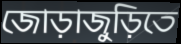
জোড়াজুড়িতে